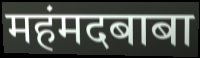
महंमदबाबा